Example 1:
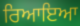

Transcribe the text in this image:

ਰਿਆਇਆ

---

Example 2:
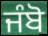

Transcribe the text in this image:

ਜੰਬੋ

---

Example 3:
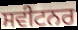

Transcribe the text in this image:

ਸਵੀਟਨਰ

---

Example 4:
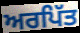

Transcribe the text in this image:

ਅਰਪਿੱਤ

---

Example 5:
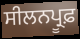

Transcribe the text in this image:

ਸੀਲਨਪ੍ਰੂਫ਼